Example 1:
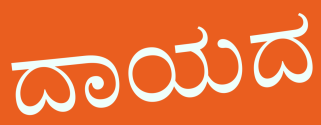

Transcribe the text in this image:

ದಾಯದ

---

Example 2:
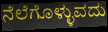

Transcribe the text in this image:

ನೆಲೆಗೊಳ್ಳುವದು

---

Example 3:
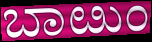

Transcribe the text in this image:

ಬಾೞುಂ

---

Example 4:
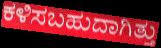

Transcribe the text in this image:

ಕಳಿಸಬಹುದಾಗಿತ್ತು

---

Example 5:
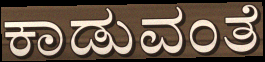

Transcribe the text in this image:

ಕಾಡುವಂತೆ